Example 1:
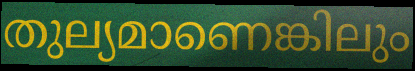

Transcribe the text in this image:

തുല്യമാണെങ്കിലും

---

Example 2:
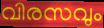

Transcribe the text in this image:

വിരസവും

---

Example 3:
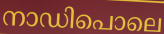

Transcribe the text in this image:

നാഡിപൊലെ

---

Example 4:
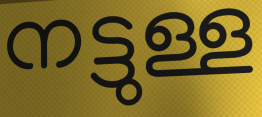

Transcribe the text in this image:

നട്ടുള്ള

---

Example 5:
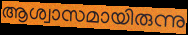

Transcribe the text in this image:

ആശ്വാസമായിരുന്നു